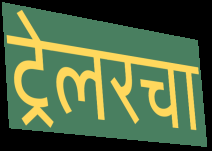
ट्रेलरचा